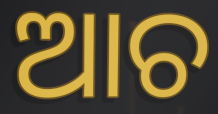
ଆଚ